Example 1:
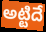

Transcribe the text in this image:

అట్టిదే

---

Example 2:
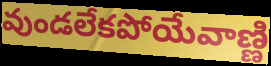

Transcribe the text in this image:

వుండలేకపోయేవాణ్ణి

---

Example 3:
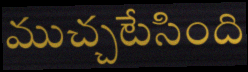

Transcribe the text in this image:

ముచ్చటేసింది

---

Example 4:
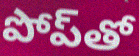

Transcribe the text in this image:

పోప్‌తో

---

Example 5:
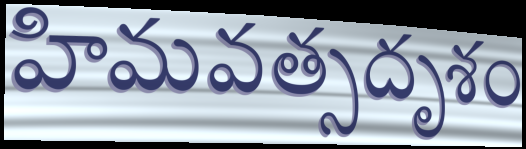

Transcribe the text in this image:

హిమవత్సదృశం